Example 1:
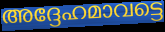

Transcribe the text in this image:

അദ്ദേഹമാവട്ടെ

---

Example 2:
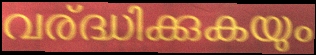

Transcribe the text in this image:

വര്ദ്ധിക്കുകയും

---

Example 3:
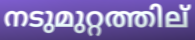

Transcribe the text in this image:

നടുമുറ്റത്തില്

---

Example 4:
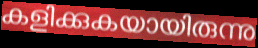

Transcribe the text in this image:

കളിക്കുകയായിരുന്നു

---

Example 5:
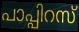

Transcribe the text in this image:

പാപ്പിറസ്